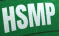
HSMP